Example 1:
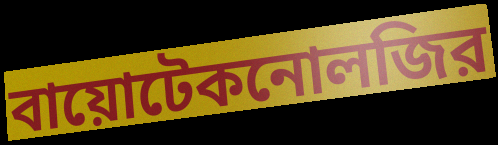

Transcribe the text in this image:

বায়োটেকনোলজির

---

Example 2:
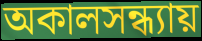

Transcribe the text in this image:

অকালসন্ধ্যায়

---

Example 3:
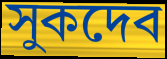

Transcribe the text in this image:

সুকদেব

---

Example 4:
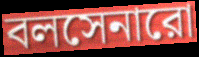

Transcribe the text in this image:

বলসেনারো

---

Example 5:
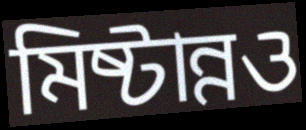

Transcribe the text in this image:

মিষ্টান্নও